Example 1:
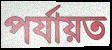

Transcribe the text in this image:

পৰ্যায়ত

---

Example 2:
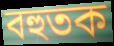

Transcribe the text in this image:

বহুতক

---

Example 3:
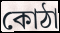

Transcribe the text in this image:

কোঠা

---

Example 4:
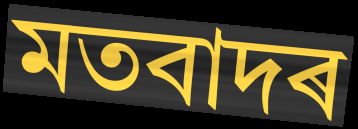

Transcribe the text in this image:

মতবাদৰ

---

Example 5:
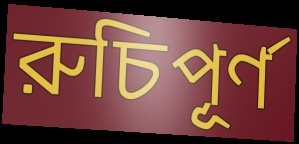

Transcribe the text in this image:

ৰুচিপূৰ্ণ